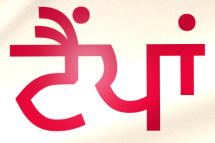
ਟੈਂਪਾਂ